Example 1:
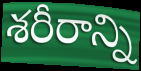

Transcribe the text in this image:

శరీరాన్ని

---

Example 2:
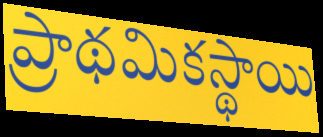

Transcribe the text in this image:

ప్రాథమికస్థాయి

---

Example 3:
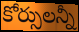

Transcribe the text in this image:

కోర్సులన్నీ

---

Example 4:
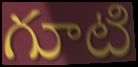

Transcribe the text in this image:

గూటి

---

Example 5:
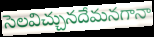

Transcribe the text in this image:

సెలవిచ్చునదేమనగానా